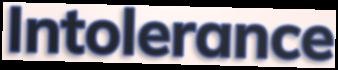
Intolerance